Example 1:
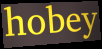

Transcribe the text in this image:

hobey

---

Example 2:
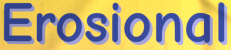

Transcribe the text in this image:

Erosional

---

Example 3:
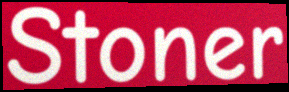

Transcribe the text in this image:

Stoner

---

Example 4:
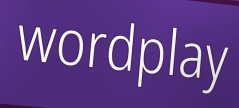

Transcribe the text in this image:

wordplay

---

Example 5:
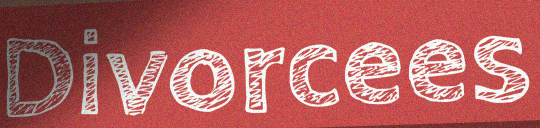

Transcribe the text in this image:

Divorcees